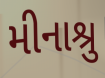
મીનાશ્રુ